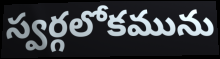
స్వర్గలోకమును